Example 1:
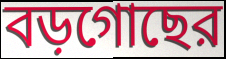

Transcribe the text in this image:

বড়গোছের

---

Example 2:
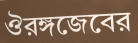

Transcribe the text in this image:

ঔরঙ্গজেবের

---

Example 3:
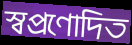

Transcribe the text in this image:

স্বপ্রণোদিত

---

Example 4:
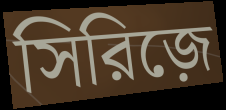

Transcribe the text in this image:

সিরিজ়ে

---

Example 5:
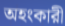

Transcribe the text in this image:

অহংকারী